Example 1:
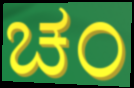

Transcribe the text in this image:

ಚಂ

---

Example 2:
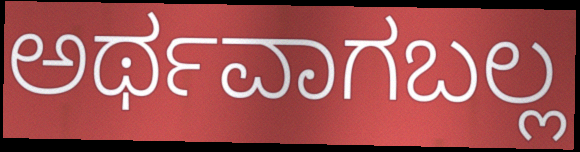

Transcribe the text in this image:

ಅರ್ಥವಾಗಬಲ್ಲ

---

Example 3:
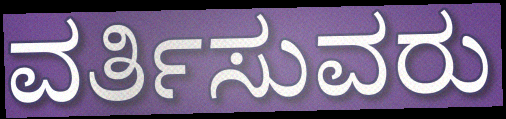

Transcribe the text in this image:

ವರ್ತಿಸುವರು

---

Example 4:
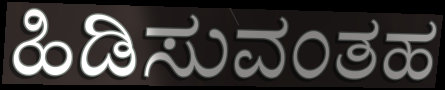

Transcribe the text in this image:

ಹಿಡಿಸುವಂತಹ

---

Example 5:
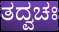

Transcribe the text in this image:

ತದ್ವಚಃ